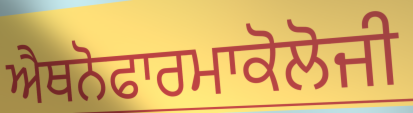
ਐਥਨੋਫਾਰਮਾਕੋਲੋਜੀ